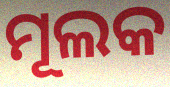
ମୂଲକ